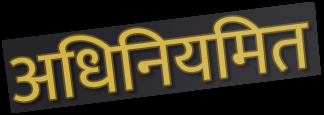
अधिनियमित